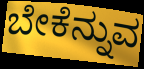
ಬೇಕೆನ್ನುವ